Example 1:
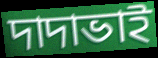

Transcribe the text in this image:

দাদাভাই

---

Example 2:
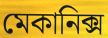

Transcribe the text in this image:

মেকানিক্স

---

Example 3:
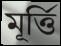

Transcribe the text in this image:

মূর্ত্তি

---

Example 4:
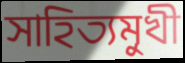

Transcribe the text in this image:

সাহিত্যমুখী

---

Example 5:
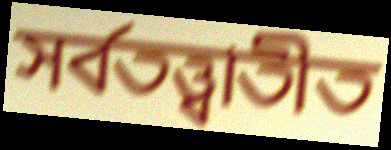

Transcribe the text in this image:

সর্বতত্ত্বাতীত